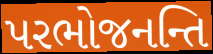
પરભોજનન્તિ